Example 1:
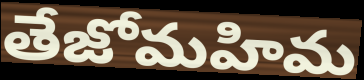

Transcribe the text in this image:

తేజోమహిమ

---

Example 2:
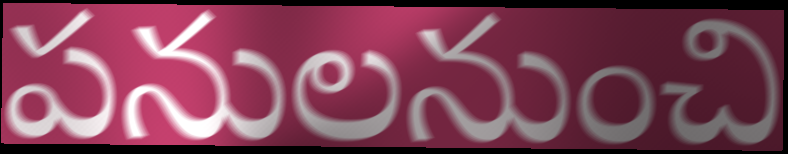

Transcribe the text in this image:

పనులనుంచి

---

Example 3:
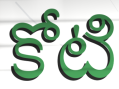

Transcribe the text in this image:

కోటి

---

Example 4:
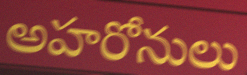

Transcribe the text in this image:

అహరోనులు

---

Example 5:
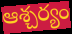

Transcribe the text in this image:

ఆశ్చర్యం